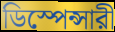
ডিস্পেন্সারী